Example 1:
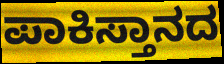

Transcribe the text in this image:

ಪಾಕಿಸ್ತಾನದ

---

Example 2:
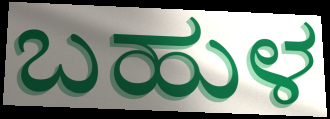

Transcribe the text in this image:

ಬಹುಳ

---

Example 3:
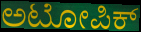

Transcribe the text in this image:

ಅಟೋಪಿಕ್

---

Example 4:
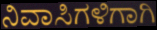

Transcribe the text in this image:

ನಿವಾಸಿಗಳಿಗಾಗಿ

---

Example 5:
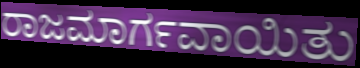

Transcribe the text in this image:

ರಾಜಮಾರ್ಗವಾಯಿತು